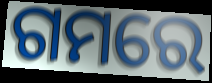
ଗମରେ